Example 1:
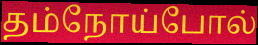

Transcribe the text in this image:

தம்நோய்போல்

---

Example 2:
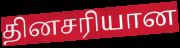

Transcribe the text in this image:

தினசரியான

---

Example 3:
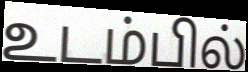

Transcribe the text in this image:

உடம்பில்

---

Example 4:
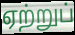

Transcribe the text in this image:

ஏற்றுப்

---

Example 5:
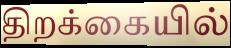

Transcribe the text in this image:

திறக்கையில்